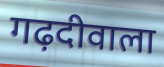
गढ़दीवाला